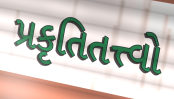
પ્રકૃતિતત્ત્વો